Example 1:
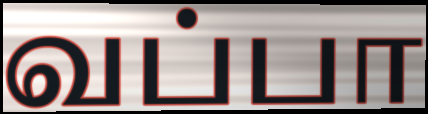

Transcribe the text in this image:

வப்பா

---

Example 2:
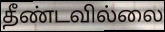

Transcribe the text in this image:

தீண்டவில்லை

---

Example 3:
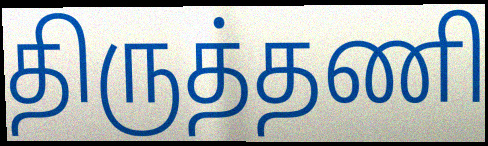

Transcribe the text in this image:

திருத்தணி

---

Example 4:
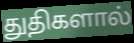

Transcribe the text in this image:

துதிகளால்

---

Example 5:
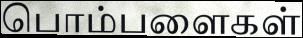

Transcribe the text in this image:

பொம்பளைகள்